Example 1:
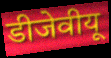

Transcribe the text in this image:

डीजेवीयू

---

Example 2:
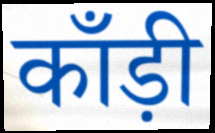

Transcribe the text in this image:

काँड़ी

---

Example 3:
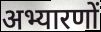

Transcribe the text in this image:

अभ्यारणों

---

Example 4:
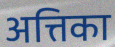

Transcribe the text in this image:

अत्तिका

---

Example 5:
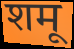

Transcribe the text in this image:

शमू